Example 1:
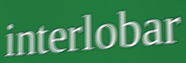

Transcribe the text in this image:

interlobar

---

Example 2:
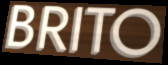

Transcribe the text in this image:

BRITO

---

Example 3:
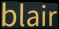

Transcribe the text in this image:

blair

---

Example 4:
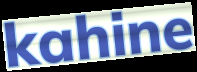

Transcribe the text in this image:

kahine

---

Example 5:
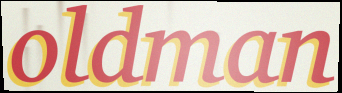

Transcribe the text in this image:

oldman